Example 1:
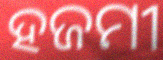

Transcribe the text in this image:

ହଜମୀ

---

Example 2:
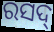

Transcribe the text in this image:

ରସଦ୍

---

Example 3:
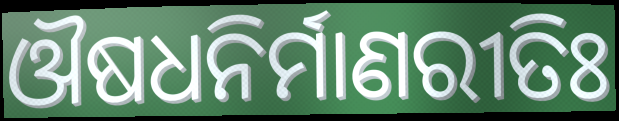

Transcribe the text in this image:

ଔଷଧନିର୍ମାଣରୀତିଃ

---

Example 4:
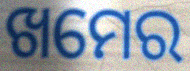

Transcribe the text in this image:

ଖମେର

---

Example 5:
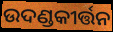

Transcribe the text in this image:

ଉଦଣ୍ଡକୀର୍ତ୍ତନ